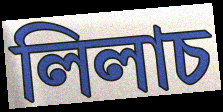
লিলাচ